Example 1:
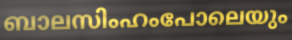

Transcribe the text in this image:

ബാലസിംഹംപോലെയും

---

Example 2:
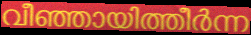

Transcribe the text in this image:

വീഞ്ഞായിത്തീർന്ന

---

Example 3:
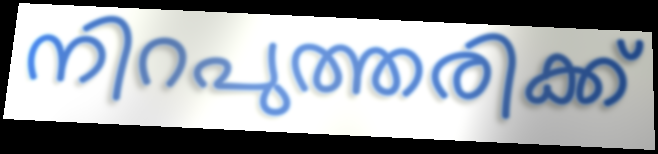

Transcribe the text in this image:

നിറപുത്തരിക്ക്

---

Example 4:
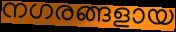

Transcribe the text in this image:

നഗരങ്ങളായ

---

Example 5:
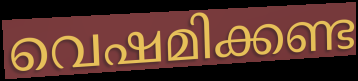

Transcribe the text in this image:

വെഷമിക്കണ്ട